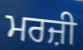
ਮਰਜ਼ੀ